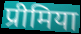
प्रीमिया